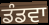
ਡੰਡਵਾ